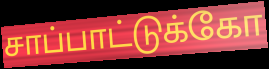
சாப்பாட்டுக்கோ